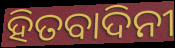
ହିତବାଦିନୀ